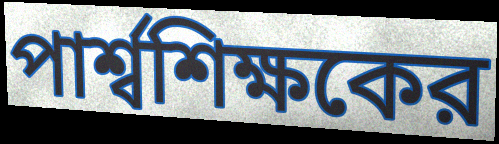
পার্শ্বশিক্ষকের